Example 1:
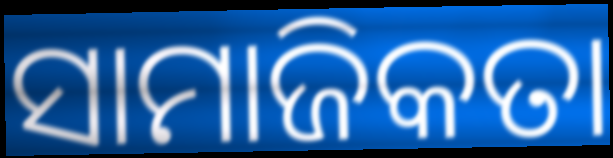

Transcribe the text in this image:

ସାମାଜିକତା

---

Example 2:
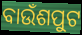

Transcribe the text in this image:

ବାଉଁଶପୁଟ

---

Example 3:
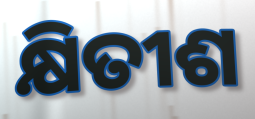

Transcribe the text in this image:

କ୍ଷିତୀଶ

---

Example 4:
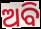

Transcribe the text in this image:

ଅବି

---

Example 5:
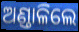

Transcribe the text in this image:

ଅଣ୍ଡାଳିଲେ